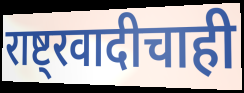
राष्ट्रवादीचाही